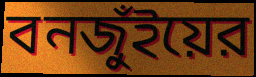
বনজুঁইয়ের